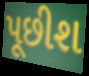
પૂછીશ